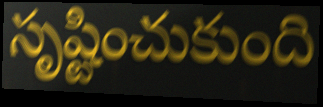
సృష్టించుకుంది